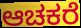
ಆಚಕರೆ